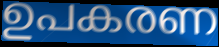
ഉപകരണ